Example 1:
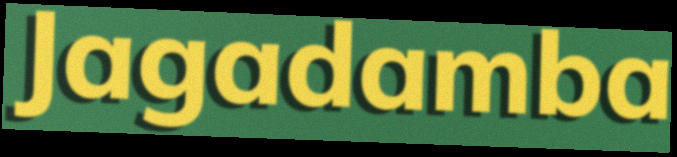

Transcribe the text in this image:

Jagadamba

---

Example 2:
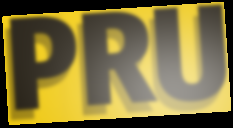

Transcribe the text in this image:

PRU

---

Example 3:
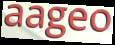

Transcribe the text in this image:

aageo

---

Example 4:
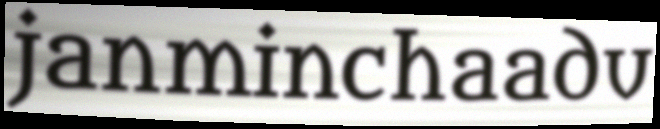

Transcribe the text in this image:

janminchaadu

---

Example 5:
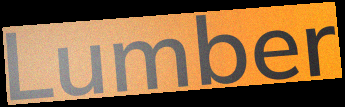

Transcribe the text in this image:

Lumber